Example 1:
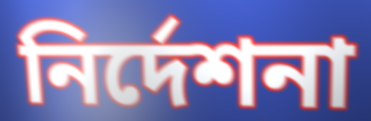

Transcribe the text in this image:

নিৰ্দেশনা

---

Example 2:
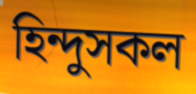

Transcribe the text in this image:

হিন্দুসকল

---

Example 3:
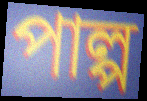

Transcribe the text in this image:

পাল্প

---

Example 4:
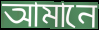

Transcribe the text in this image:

আমানে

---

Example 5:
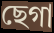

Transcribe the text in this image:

ছেগা